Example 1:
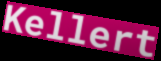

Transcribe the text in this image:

Kellert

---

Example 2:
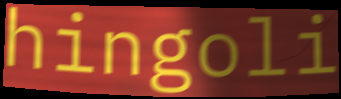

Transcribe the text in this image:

hingoli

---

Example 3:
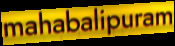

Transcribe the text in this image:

mahabalipuram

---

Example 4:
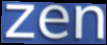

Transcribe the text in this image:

zen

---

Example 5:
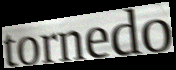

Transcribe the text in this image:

tornedo